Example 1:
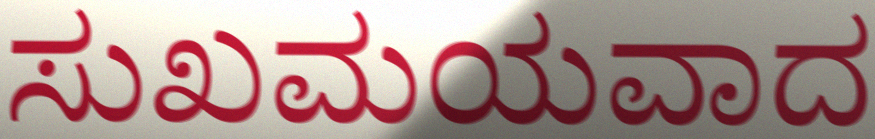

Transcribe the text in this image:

ಸುಖಮಯವಾದ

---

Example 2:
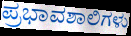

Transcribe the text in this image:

ಪ್ರಭಾವಶಾಲಿಗಳು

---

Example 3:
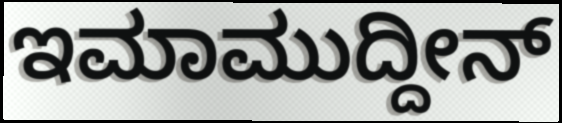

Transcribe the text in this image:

ಇಮಾಮುದ್ದೀನ್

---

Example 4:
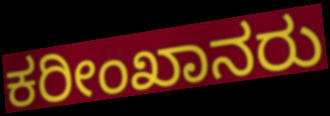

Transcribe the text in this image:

ಕರೀಂಖಾನರು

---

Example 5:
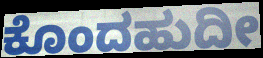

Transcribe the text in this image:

ಕೊಂದಹುದೀ